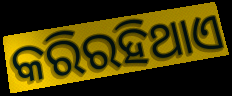
କରିରହିଥାଏ